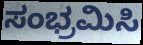
ಸಂಭ್ರಮಿಸಿ